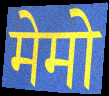
मेमो